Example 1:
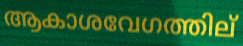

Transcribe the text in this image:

ആകാശവേഗത്തില്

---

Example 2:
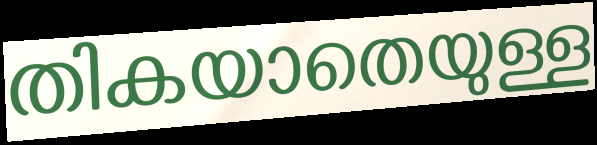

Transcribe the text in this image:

തികയാതെയുള്ള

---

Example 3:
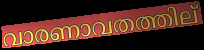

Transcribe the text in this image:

വാരണാവതത്തില്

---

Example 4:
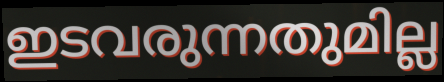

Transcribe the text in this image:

ഇടവരുന്നതുമില്ല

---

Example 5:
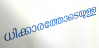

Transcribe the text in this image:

ധിക്കാരത്തോടെയുള്ള